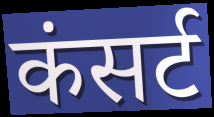
कंसर्ट